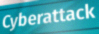
Cyberattack